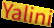
Yalini